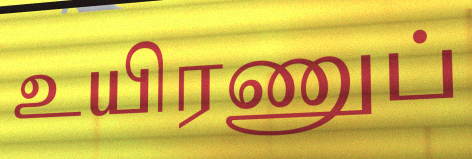
உயிரணுப்